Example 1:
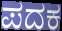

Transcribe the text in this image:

ಪದಕ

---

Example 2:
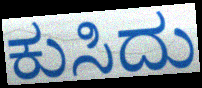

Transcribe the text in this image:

ಕುಸಿದು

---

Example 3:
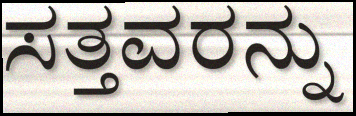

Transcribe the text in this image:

ಸತ್ತವರನ್ನು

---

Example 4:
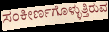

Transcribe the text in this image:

ಸಂಕೀರ್ಣಗೊಳ್ಳುತ್ತಿರುವ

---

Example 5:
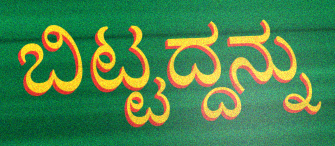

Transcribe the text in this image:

ಬಿಟ್ಟದ್ದನ್ನು